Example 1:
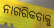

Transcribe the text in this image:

ନାଗରିକତାକୁ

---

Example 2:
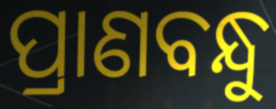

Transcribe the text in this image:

ପ୍ରାଣବନ୍ଧୁ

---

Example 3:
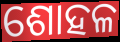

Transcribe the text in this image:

ଶୋହଳ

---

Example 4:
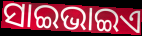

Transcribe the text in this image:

ସାଇଭାଇଏ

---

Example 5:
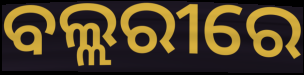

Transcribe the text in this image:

ବଲ୍ଲରୀରେ